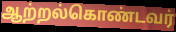
ஆற்றல்கொண்டவர்